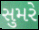
સુમરે